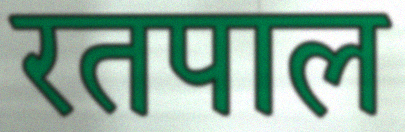
रतपाल